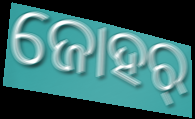
ଜୋହର୍